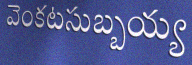
వెంకటసుబ్బయ్య